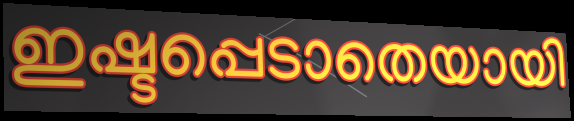
ഇഷ്ടപ്പെടാതെയായി